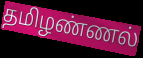
தமிழண்ணல்